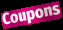
Coupons